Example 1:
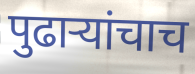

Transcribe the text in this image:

पुढाऱ्यांचाच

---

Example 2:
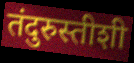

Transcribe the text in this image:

तंदुरुस्तीशी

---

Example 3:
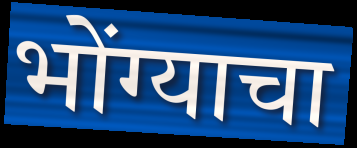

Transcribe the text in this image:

भोंग्याचा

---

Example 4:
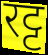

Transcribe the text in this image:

रट्ट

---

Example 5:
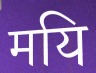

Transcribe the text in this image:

मयि